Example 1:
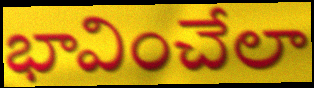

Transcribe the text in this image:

భావించేలా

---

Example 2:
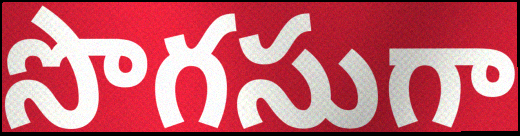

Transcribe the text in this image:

సొగసుగా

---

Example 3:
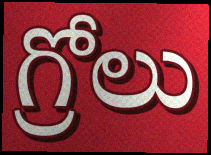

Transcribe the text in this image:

గ్రోలు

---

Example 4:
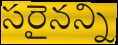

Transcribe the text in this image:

సరైనన్ని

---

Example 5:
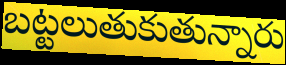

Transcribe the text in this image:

బట్టలుతుకుతున్నారు